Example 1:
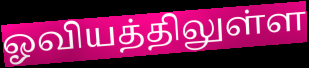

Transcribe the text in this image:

ஓவியத்திலுள்ள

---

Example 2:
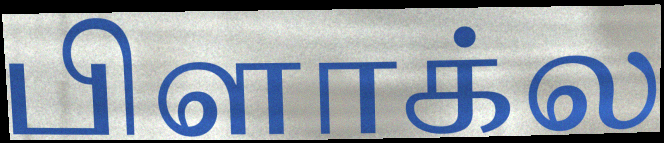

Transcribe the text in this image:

பிளாக்ல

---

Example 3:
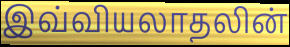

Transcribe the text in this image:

இவ்வியலாதலின்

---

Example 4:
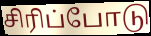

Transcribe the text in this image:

சிரிப்போடு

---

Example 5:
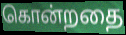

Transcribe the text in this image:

கொன்றதை